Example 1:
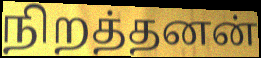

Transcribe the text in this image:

நிறத்தனன்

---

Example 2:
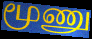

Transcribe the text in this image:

மூணு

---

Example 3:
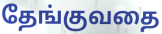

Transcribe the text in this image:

தேங்குவதை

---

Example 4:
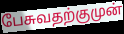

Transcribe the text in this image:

பேசுவதற்குமுன்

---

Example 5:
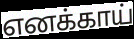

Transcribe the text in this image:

எனக்காய்